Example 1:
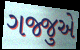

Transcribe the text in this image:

ગજ્જુએ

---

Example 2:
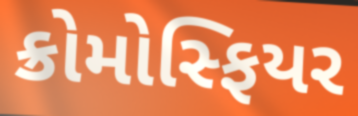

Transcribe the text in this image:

ક્રોમોસ્ફિયર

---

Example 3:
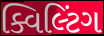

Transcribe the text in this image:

ક્વિલ્ટિંગ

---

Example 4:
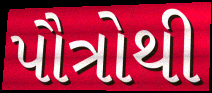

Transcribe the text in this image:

પૌત્રોથી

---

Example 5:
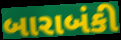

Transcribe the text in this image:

બારાબંકી